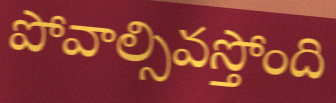
పోవాల్సివస్తోంది